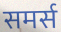
समर्स